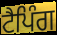
ਟੈਪਿੰਗ